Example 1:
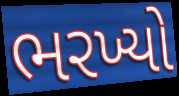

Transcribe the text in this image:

ભરખ્યો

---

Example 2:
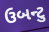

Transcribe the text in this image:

ઉબન્ટુ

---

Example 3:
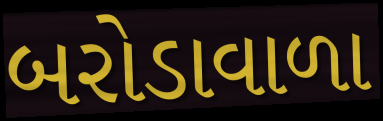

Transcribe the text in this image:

બરોડાવાળા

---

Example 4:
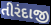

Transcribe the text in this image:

તીરંદાજી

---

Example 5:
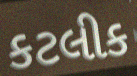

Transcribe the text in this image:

કટલીક